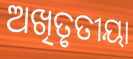
ଅଖିତୃତୀୟା